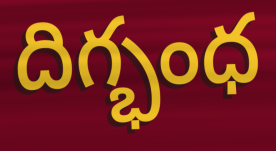
దిగ్భంధ